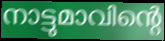
നാട്ടുമാവിന്റെ